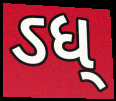
ઽધ્